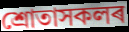
শ্ৰোতাসকলৰ